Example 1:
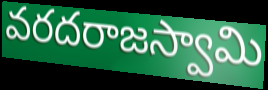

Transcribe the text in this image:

వరదరాజస్వామి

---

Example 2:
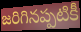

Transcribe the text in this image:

జరిగినప్పటికీ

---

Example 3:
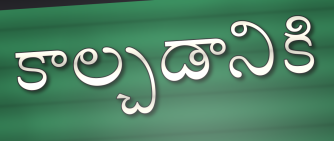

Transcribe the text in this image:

కాల్చడానికి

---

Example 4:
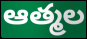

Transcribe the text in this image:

ఆత్మల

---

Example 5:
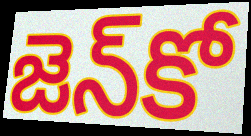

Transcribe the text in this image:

జెన్‌కో